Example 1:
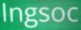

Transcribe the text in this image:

Ingsoc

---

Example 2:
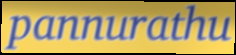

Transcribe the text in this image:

pannurathu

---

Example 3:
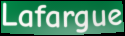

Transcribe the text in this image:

Lafargue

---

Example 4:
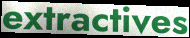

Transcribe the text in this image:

extractives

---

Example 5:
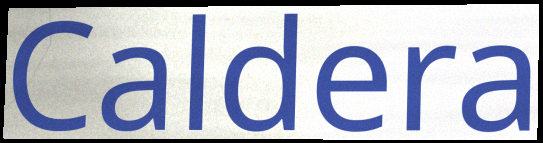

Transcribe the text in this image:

Caldera